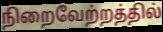
நிறைவேற்றத்தில்